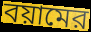
বয়ামের